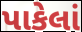
પાકેલાં